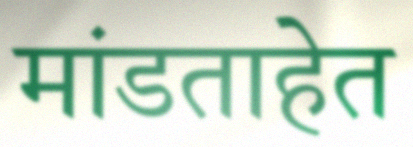
मांडताहेत